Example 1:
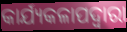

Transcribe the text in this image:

କାର୍ଯ୍ୟକଳାପଦ୍ୱାରା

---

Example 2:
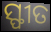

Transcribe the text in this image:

ସ୍ଫୀତ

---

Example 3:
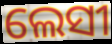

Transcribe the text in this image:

ଲେସୀ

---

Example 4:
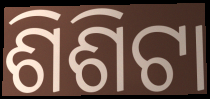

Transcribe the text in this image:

ଶିଶିଟା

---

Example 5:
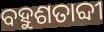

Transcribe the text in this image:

ବହୁଶତାବ୍ଦୀ